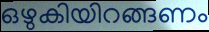
ഒഴുകിയിറങ്ങണം